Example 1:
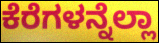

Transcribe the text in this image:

ಕೆರೆಗಳನ್ನೆಲ್ಲಾ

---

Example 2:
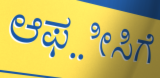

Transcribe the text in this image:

ಆಫ಼ೀಸಿಗೆ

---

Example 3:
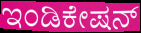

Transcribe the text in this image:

ಇಂಡಿಕೇಷನ್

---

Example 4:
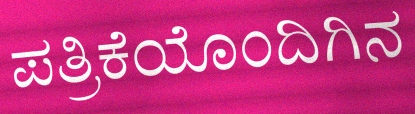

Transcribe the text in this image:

ಪತ್ರಿಕೆಯೊಂದಿಗಿನ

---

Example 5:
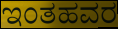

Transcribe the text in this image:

ಇಂತಹವರ